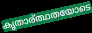
കൃതാര്ത്ഥതയോടെ